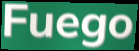
Fuego